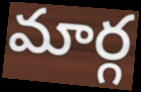
మార్గ